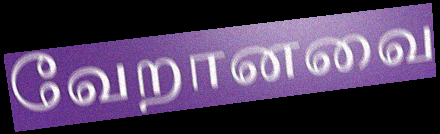
வேறானவை